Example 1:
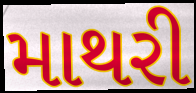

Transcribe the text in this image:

માથરી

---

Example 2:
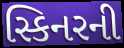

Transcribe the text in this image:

સ્કિનરની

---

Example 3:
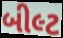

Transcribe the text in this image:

બીલ્ટ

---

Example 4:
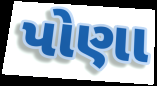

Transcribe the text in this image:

પોણા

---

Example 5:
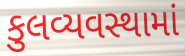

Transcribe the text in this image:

કુલવ્યવસ્થામાં